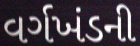
વર્ગખંડની